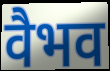
वैभव